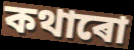
কথাৰো